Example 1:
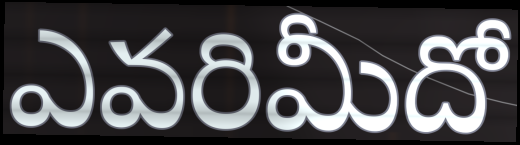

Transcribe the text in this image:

ఎవరిమీదో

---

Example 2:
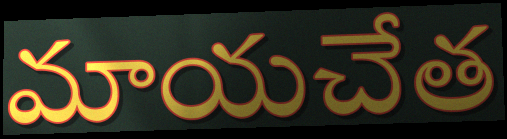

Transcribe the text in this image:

మాయచేత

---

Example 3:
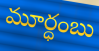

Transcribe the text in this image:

మూర్ధంబు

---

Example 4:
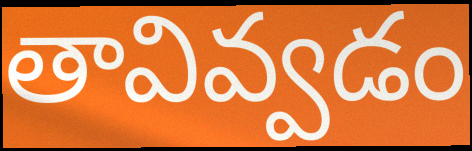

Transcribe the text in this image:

తావివ్వడం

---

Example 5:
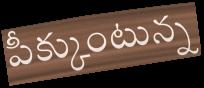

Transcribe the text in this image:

పీక్కుంటున్న